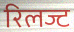
रिलज्ट